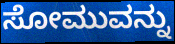
ಸೋಮುವನ್ನು